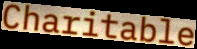
Charitable